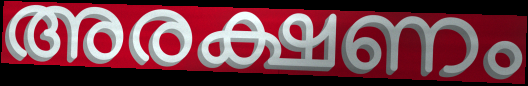
അരക്ഷണം